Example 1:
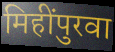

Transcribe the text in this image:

मिहींपुरवा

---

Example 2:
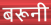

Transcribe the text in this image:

बरूनी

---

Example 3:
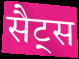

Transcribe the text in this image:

सैट्स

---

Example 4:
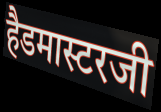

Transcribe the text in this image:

हैडमास्टरजी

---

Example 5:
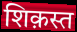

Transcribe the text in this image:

शिक़स्त